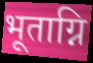
भूताग्नि